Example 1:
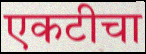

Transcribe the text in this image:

एकटीचा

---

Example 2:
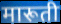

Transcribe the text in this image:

मारूती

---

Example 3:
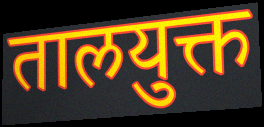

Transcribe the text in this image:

तालयुक्त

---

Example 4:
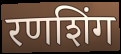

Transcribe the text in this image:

रणशिंग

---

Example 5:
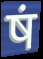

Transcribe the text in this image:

षं